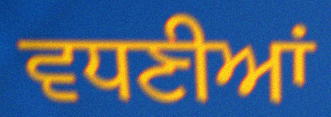
ਵਧਣੀਆਂ